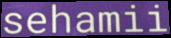
sehamii